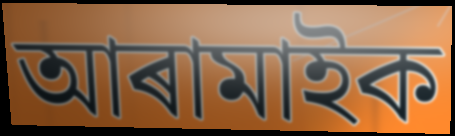
আৰামাইক